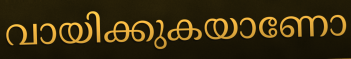
വായിക്കുകയാണോ